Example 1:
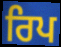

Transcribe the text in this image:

ਰਿਪ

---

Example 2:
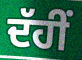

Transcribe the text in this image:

ਦੱਹੀਂ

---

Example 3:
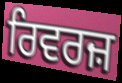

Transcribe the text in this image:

ਰਿਵਰਜ਼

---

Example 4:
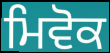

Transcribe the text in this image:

ਮਿਵੋਕ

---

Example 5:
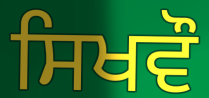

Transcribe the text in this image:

ਸਿਖਵੌ